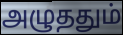
அழுததும்